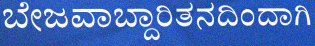
ಬೇಜವಾಬ್ದಾರಿತನದಿಂದಾಗಿ